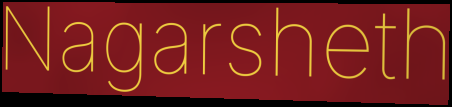
Nagarsheth